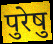
पुरेषु